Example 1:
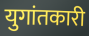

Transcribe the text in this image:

युगांतकारी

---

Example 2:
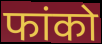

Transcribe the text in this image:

फांको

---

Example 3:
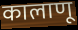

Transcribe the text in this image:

कालाणू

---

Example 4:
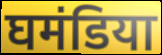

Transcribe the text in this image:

घमंडिया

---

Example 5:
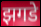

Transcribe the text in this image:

झगडे